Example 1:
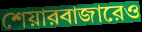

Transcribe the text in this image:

শেয়ারবাজারেও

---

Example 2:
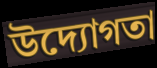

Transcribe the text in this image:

উদ্যোগতা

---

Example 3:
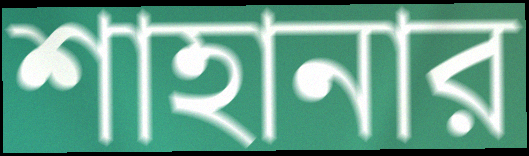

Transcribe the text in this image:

শাহানার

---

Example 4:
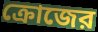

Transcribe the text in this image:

ক্রোজের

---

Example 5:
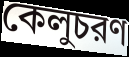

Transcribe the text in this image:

কেলুচরণ